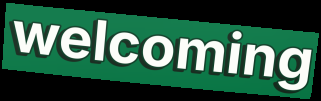
welcoming